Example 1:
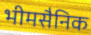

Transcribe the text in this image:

भीमसैनिक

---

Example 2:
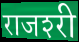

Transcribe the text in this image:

राजश्री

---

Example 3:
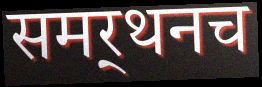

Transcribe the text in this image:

समर्थनच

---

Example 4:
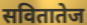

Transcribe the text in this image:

सवितातेज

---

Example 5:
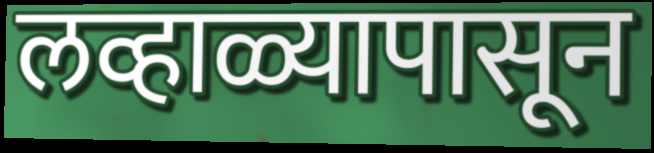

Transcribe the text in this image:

लव्हाळ्यापासून